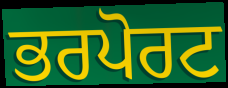
ਭਰਪੋਰਟ